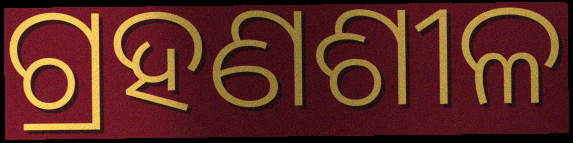
ଗ୍ରହଣଶୀଳ